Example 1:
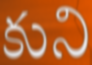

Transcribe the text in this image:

కుని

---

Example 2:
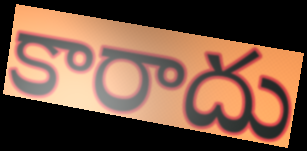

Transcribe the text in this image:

కారాదు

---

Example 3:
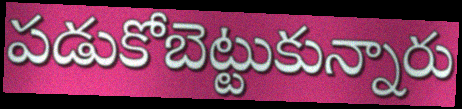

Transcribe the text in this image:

పడుకోబెట్టుకున్నారు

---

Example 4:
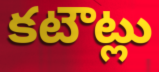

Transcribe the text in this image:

కటౌట్లు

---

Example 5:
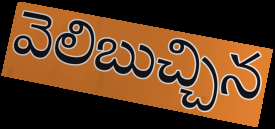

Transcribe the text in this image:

వెలిబుచ్చిన